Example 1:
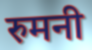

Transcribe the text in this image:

रुमनी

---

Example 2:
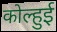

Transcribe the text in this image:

कोल्हुई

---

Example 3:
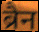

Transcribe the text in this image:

ब्रैन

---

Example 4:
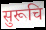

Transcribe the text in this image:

सुरूचि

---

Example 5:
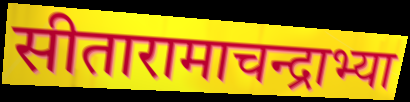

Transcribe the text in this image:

सीतारामाचन्द्राभ्या